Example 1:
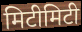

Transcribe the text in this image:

मिटीमिटी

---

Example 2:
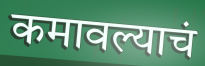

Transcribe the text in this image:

कमावल्याचं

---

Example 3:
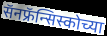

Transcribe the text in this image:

सॅनफ्रॅन्सिस्कोच्या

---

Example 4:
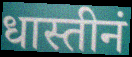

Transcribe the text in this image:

धास्तीनं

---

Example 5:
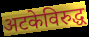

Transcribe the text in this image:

अटकेविरुद्ध